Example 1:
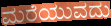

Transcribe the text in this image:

ಮರೆಯುವದು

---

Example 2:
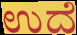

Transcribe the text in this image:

ಉದೆ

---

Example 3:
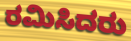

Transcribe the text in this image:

ರಮಿಸಿದರು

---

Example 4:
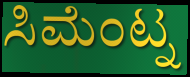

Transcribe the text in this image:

ಸಿಮೆಂಟ್ನ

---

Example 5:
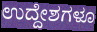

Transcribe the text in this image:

ಉದ್ದೇಶಗಳೂ